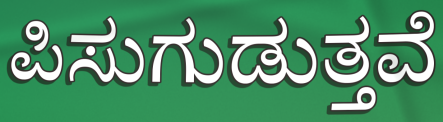
ಪಿಸುಗುಡುತ್ತವೆ